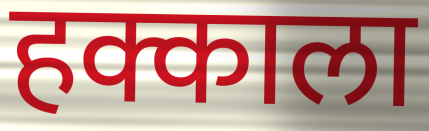
हक्काला